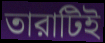
তারাটিই